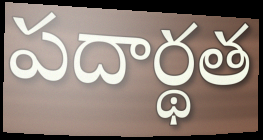
పదార్థత